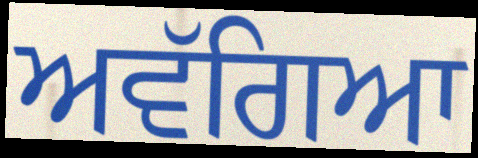
ਅਵੱਗਿਆ